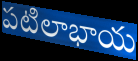
పటిలాభాయ